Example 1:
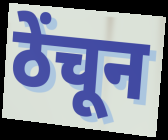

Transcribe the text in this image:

ठेंचून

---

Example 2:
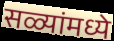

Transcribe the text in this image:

सळ्यांमध्ये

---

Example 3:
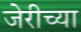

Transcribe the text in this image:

जेरीच्या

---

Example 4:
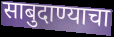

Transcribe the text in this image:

साबुदाण्याचा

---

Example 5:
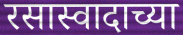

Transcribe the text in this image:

रसास्वादाच्या